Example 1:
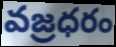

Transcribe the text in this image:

వజ్రధరం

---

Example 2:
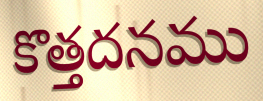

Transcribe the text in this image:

కొత్తదనము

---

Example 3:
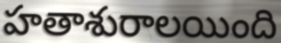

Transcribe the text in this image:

హతాశురాలయింది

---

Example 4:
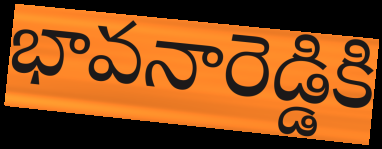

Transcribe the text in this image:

భావనారెడ్డికి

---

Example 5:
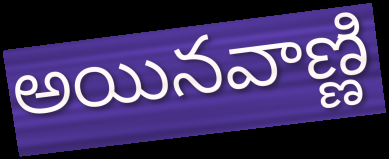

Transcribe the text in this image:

అయినవాణ్ణి